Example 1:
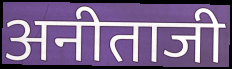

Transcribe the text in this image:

अनीताजी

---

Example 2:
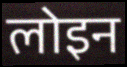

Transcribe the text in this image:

लोइन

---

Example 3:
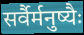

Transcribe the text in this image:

सर्वैर्मनुष्यैः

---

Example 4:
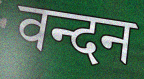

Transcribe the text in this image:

वन्दन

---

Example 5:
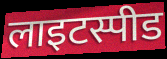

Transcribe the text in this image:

लाइटस्पीड